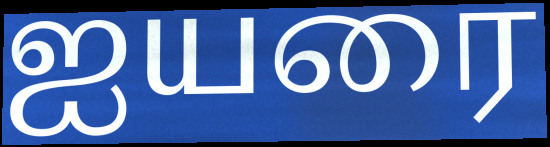
ஐயரை